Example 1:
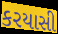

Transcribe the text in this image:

કરયાસી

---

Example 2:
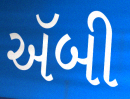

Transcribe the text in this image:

ઍબી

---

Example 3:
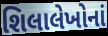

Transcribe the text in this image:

શિલાલેખોનાં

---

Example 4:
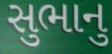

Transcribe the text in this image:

સુભાનુ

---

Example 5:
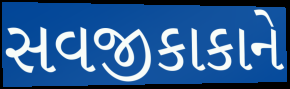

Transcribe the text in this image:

સવજીકાકાને